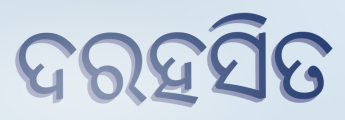
ଦରହସିତ